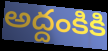
అద్దంకికి